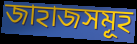
জাহাজসমূহ